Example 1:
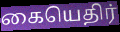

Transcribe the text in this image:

கையெதிர்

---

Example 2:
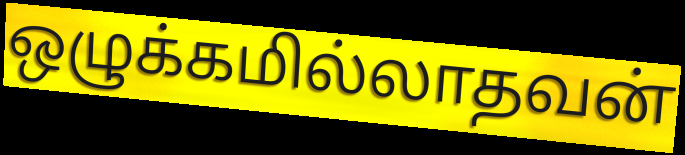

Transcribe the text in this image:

ஒழுக்கமில்லாதவன்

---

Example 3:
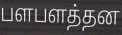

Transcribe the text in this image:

பளபளத்தன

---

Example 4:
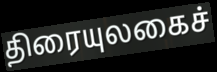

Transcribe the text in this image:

திரையுலகைச்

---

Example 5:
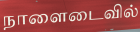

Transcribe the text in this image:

நாளைடைவில்